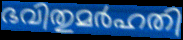
ഭവിതുമർഹതി